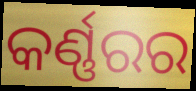
କର୍ଣ୍ଣରର